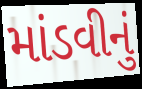
માંડવીનું